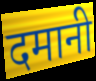
दमानी